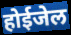
होईजेल